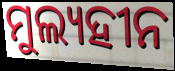
ମୁଲ୍ୟହୀନ